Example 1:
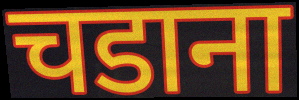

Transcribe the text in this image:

चडाना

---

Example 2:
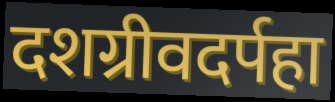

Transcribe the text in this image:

दशग्रीवदर्पहा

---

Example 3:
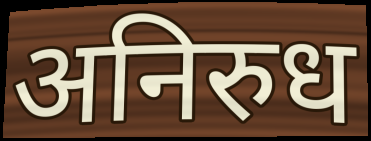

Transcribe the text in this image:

अनिरुध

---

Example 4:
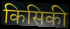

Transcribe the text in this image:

किसिकी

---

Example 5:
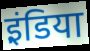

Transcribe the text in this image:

इ़ंडिया